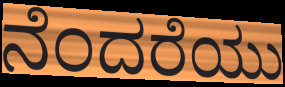
ನೆಂದರೆಯು